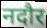
नदौर